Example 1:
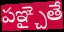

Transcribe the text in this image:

పఞ్చైతే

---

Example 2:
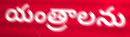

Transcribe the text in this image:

యంత్రాలను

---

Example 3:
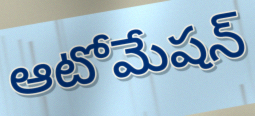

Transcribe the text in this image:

ఆటోమేషన్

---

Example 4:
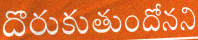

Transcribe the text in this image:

దొరుకుతుందోనని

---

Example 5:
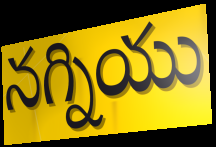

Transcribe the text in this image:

నగ్నియు